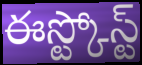
ఈస్ట్కోస్ట్